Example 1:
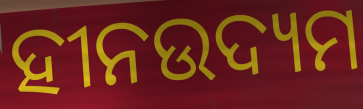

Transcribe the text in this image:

ହୀନଉଦ୍ୟମ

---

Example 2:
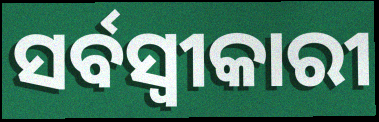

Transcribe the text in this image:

ସର୍ବସ୍ଵୀକାରୀ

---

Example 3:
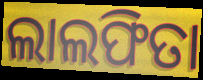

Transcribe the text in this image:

ଲାଲଫିତା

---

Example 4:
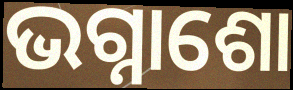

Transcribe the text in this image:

ଭଗ୍ନାଶୋ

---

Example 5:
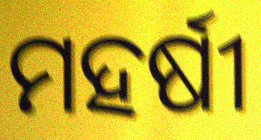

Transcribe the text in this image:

ମହର୍ଷୀ